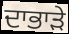
ਦਾਭਾੜੇ